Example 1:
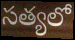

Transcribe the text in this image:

సత్యలో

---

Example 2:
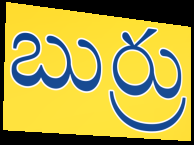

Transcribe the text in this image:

బుర్రు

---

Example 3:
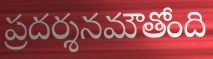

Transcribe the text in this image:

ప్రదర్శనమౌతోంది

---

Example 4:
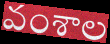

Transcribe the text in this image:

వంశాల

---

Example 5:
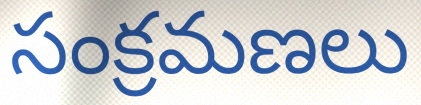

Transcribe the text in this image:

సంక్రమణలు